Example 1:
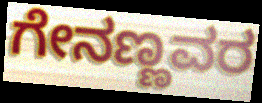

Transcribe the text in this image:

ಗೇನಣ್ಣವರ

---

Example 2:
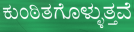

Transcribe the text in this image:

ಕುಂಠಿತಗೊಳ್ಳುತ್ತವೆ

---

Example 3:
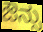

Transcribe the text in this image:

ಔನ್ಸು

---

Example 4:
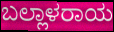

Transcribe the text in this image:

ಬಲ್ಲಾಳರಾಯ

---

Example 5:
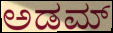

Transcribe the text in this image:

ಅಡಮ್